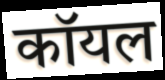
कॉयल